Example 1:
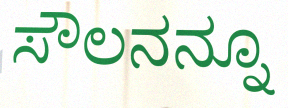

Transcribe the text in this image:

ಸೌಲನನ್ನೂ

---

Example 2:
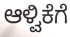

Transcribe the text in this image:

ಆಳ್ವಿಕೆಗೆ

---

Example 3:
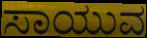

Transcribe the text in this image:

ಸಾಯುವ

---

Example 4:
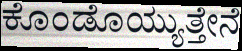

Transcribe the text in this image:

ಕೊಂಡೊಯ್ಯುತ್ತೇನೆ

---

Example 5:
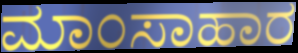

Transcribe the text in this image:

ಮಾಂಸಾಹಾರ